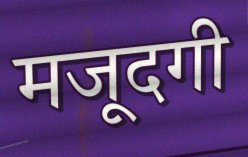
मजूदगी